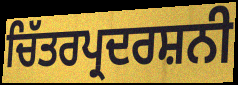
ਚਿੱਤਰਪ੍ਰਦਰਸ਼ਨੀ